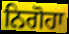
ਨਿਗੋਹਾ